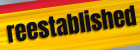
reestablished